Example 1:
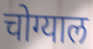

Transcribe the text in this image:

चोग्याल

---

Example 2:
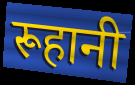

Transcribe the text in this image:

रूहानी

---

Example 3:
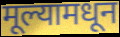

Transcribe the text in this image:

मूल्यामधून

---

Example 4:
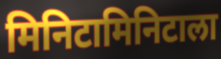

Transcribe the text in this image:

मिनिटामिनिटाला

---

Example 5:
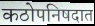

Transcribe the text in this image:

कठोपनिषदात